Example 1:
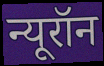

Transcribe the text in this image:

न्यूरॉन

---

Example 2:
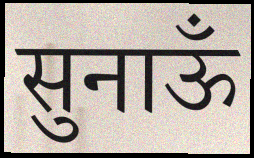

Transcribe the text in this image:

सुनाऊँ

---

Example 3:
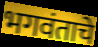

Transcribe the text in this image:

भगवंताचे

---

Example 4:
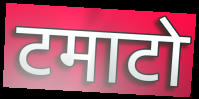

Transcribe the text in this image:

टमाटो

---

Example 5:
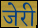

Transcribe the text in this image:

जेरी